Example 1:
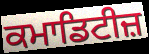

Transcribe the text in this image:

ਕਮਾਡਿਟੀਜ਼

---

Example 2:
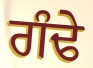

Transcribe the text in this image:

ਗੰਢੇ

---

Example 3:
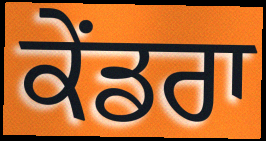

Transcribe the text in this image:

ਕੇਂਡਰਾ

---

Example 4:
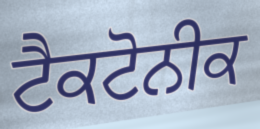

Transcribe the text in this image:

ਟੈਕਟੋਨੀਕ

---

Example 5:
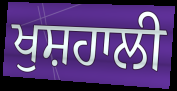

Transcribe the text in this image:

ਖੁਸ਼ਹਾਲੀ